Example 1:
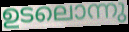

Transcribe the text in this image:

ഉടലൊന്നു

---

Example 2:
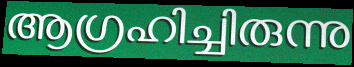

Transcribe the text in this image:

ആഗ്രഹിച്ചിരുന്നു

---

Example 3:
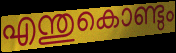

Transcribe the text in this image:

എന്തുകൊണ്ടും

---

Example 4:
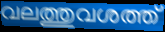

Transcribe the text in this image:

വലത്തുവശത്ത്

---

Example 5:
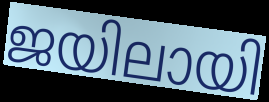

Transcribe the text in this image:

ജയിലായി